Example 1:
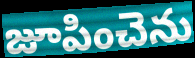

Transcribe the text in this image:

జూపించెను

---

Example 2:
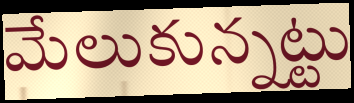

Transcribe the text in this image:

మేలుకున్నట్టు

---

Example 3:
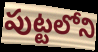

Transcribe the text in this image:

పుట్టలోని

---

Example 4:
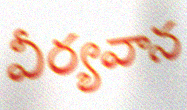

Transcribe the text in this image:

వీర్యవాన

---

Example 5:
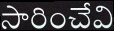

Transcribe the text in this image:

సారించేవి